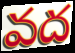
వద